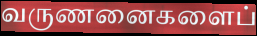
வருணனைகளைப்